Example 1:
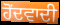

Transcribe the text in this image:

ਹੋਂਦਵਾਦੀ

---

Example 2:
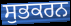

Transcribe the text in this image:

ਸੁਭਕਰਨ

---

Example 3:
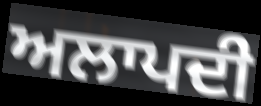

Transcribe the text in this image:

ਅਲਾਪਦੀ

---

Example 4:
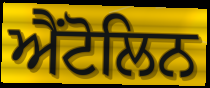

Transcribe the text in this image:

ਐਂਟੋਲਿਨ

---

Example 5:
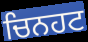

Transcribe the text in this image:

ਚਿਨਹਟ